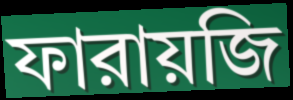
ফারায়জি